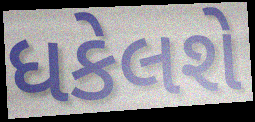
ધકેલશે